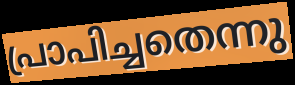
പ്രാപിച്ചതെന്നു